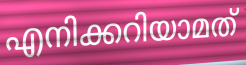
എനിക്കറിയാമത്